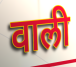
वाली